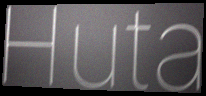
Huta